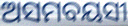
ଅସମବୟସୀ